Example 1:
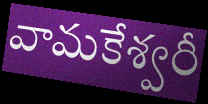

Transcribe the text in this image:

వామకేశ్వరీ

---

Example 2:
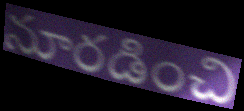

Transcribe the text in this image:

నూరడించి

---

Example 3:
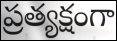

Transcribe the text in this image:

ప్రత్యక్షంగా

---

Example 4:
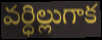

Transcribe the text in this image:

వర్ధిల్లుగాక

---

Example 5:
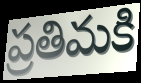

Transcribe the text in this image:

ప్రతిమకి